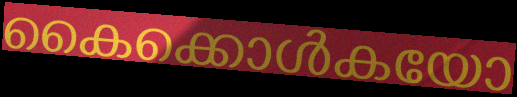
കൈക്കൊൾകയോ